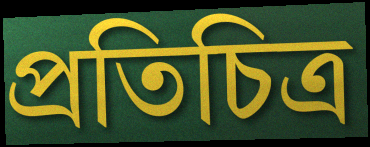
প্রতিচিত্র